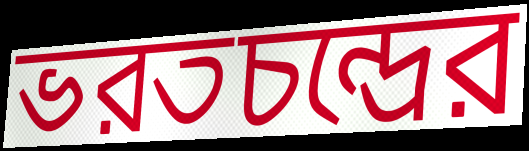
ভরতচন্দ্রের